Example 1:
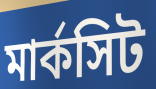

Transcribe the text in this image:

মার্কসিট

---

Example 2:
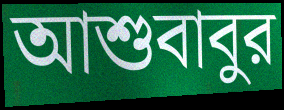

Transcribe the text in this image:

আশুবাবুর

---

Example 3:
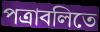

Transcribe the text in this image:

পত্রাবলিতে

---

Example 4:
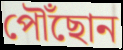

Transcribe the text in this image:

পৌঁছোন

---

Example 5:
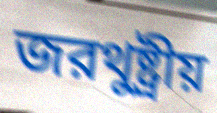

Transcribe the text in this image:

জরথুষ্ট্রীয়